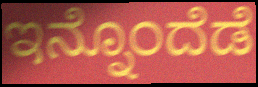
ಇನ್ನೊಂದೆಡೆ